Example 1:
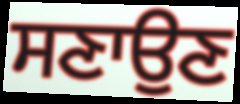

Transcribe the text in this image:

ਸਣਾਉਣ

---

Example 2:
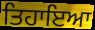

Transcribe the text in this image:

ਤਿਹਾਇਆ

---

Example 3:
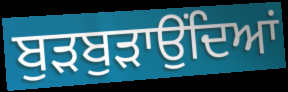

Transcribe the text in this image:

ਬੁੜਬੁੜਾਉਂਦਿਆਂ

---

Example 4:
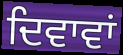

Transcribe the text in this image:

ਦਿਵਾਵਾਂ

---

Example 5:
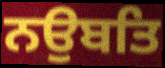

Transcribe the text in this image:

ਨਉਬਤਿ